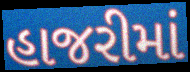
હાજરીમાં